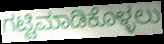
ಗಟ್ಟಿಮಾಡಿಕೊಳ್ಳಲು